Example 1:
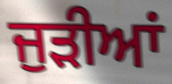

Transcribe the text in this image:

ਜੁੜੀਆਂ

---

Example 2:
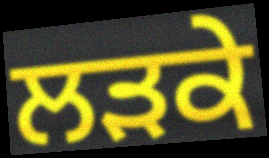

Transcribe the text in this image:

ਲੜਕੇ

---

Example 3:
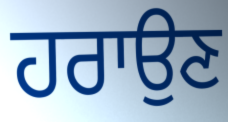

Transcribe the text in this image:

ਹਰਾਉਣ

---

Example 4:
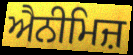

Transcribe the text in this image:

ਐਨੀਮਿਜ਼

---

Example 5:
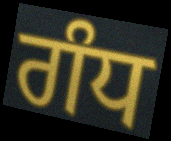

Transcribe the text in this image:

ਗੰਧ